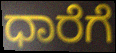
ಧಾರೆಗೆ